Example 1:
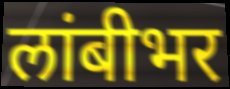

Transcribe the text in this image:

लांबीभर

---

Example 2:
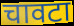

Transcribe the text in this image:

चावटा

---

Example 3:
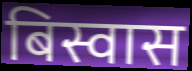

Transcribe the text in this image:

बिस्वास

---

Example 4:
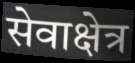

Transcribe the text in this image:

सेवाक्षेत्र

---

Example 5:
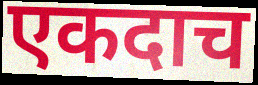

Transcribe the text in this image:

एकदाच